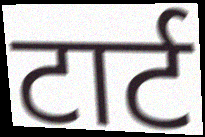
टार्ट